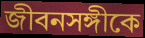
জীবনসঙ্গীকে